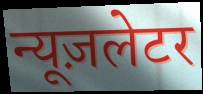
न्यूज़लेटर